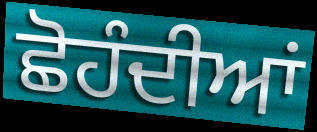
ਛੋਹੰਦੀਆਂ